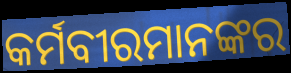
କର୍ମବୀରମାନଙ୍କର